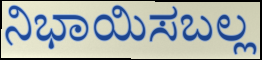
ನಿಭಾಯಿಸಬಲ್ಲ